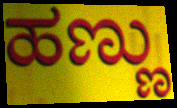
ಹಣ್ಣು